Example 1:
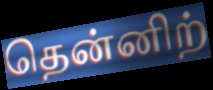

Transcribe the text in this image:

தென்னிற்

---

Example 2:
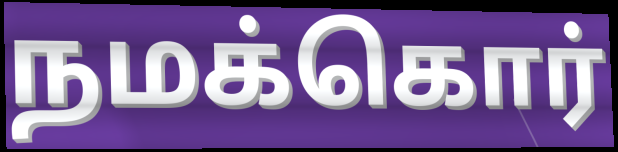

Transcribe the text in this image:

நமக்கொர்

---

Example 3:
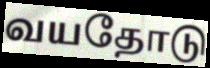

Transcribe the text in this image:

வயதோடு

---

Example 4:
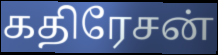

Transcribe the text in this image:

கதிரேசன்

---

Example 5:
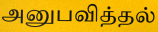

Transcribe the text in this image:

அனுபவித்தல்